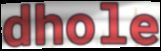
dhole